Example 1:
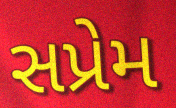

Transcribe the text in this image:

સપ્રેમ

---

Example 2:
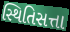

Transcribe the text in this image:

સ્થિતિસત્તા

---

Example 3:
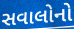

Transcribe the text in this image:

સવાલોનો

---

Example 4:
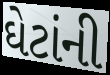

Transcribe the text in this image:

ઘેટાંની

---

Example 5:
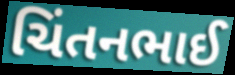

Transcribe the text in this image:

ચિંતનભાઈ